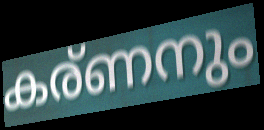
കര്ണനും